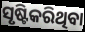
ସୃଷ୍ଟିକରିଥିବା